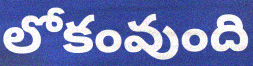
లోకంవుంది